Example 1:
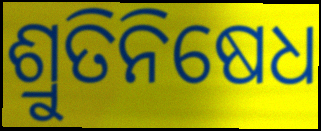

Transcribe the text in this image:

ଶ୍ରୁତିନିଷେଧ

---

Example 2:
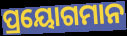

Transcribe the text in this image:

ପ୍ରୟୋଗମାନ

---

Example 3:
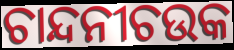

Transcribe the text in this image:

ଚାନ୍ଦନୀଚଉକ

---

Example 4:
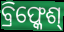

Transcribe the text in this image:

ବ୍ରିଫ୍କେଶ୍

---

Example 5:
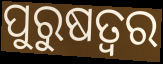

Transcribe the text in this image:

ପୁରୁଷତ୍ଵର